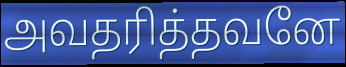
அவதரித்தவனே